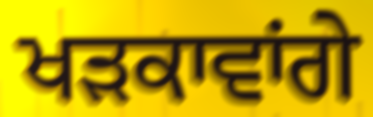
ਖੜਕਾਵਾਂਗੇ